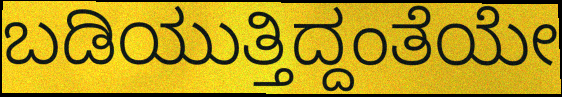
ಬಡಿಯುತ್ತಿದ್ದಂತೆಯೇ